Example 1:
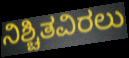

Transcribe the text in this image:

ನಿಶ್ಚಿತವಿರಲು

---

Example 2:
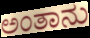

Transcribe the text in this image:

ಅಂತಾನು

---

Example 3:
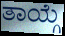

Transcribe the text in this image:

ತಾಯ್ಗೆ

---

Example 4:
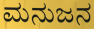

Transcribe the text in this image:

ಮನುಜನ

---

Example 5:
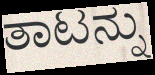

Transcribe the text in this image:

ತಾಟನ್ನು